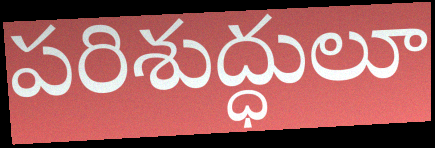
పరిశుద్ధులూ